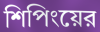
শিপিংয়ের